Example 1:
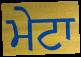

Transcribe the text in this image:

ਮੇਟਾ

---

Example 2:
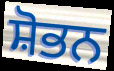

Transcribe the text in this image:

ਸ਼ੋਭਨ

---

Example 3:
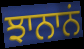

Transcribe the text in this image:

ਝਾਨਾਨਂ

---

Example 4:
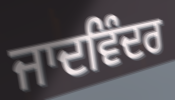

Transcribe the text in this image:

ਜਾਦਵਿੰਦਰ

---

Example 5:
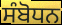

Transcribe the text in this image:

ਸੰਬੋਧਨ